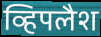
व्हिपलैश